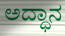
ಅದ್ಧಾನ